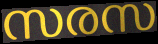
സരസ